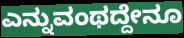
ಎನ್ನುವಂಥದ್ದೇನೂ